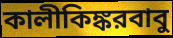
কালীকিঙ্করবাবু